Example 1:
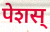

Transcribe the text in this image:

पेशस्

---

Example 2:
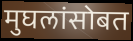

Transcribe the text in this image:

मुघलांसोबत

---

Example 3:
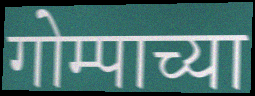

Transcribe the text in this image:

गोम्पाच्या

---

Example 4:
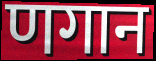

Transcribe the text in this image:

णगान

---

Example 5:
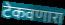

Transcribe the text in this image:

टेकवणारा